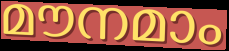
മൗനമാം